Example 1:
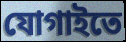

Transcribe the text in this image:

যোগাইতে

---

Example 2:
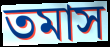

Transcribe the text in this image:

তমাস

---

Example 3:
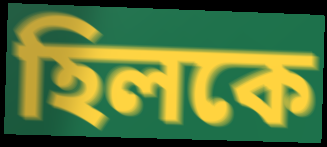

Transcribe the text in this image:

হিলকে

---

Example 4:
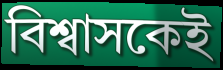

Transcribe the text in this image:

বিশ্বাসকেই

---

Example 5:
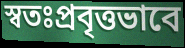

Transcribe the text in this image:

স্বতঃপ্রবৃত্তভাবে